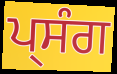
ਪ੍ਸੰਗ